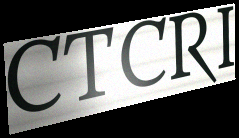
CTCRI